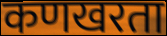
कणखरता